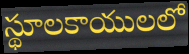
స్థూలకాయులలో